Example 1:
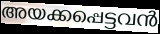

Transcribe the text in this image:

അയക്കപ്പെട്ടവൻ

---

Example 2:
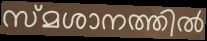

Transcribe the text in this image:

സ്മശാനത്തിൽ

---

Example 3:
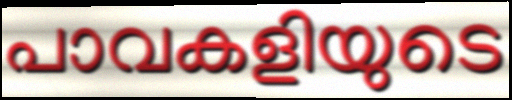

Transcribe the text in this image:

പാവകളിയുടെ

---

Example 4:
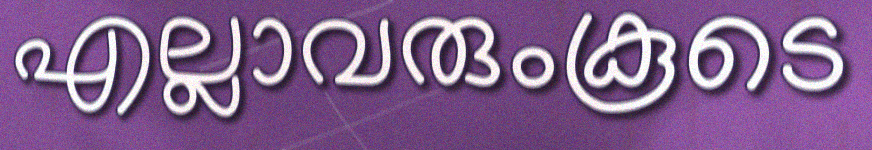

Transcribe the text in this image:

എല്ലാവരുംകൂടെ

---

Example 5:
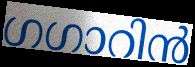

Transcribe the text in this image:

ഗഗാറിൻ